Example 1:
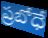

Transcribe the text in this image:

ప్రబోధే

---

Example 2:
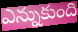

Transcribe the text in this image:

ఎన్నుకుంది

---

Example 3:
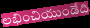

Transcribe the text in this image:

లభించియుండేది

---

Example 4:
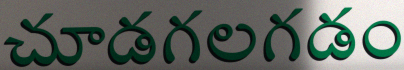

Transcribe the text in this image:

చూడగలగడం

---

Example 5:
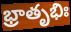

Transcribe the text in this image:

భ్రాతృభిః